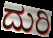
ದುರಿ